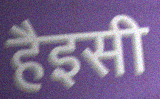
हैइसी